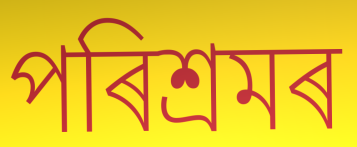
পৰিশ্ৰমৰ